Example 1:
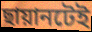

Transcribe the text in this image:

ছায়ানটেই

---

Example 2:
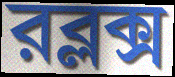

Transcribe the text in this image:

রব্লক্স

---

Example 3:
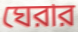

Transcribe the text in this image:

ঘেরার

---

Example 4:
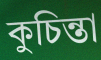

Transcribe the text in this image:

কুচিন্তা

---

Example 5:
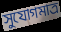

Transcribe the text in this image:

সুযোগমাত্র